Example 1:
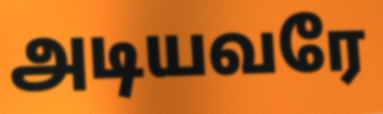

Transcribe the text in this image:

அடியவரே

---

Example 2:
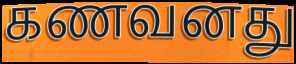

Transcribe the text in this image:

கணவனது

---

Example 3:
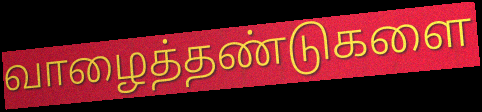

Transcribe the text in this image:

வாழைத்தண்டுகளை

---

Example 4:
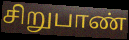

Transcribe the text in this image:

சிறுபாண்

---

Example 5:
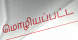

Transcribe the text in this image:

மொழியப்பட்ட